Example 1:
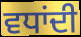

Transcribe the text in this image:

ਵਧਾਂਦੀ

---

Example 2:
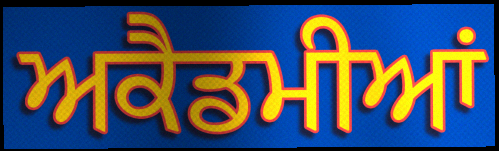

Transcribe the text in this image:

ਅਕੈਡਮੀਆਂ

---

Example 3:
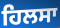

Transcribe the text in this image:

ਹਿਲਸਾ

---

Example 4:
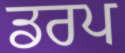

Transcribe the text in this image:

ਡਰਪ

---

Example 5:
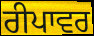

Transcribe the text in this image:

ਰੀਪਾਵਰ